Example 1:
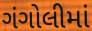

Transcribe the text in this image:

ગંગોલીમાં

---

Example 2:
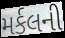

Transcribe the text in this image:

મર્કલની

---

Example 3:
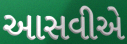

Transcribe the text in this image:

આસવીએ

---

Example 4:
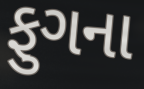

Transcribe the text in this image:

ફુગના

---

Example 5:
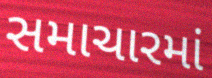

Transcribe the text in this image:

સમાચારમાં